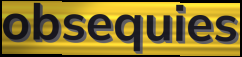
obsequies